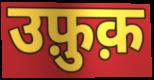
उफ़ुक़